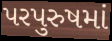
પરપુરુષમાં